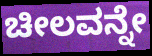
ಚೀಲವನ್ನೇ